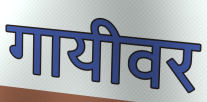
गायीवर